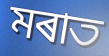
মৰাত